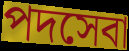
পদসেবা